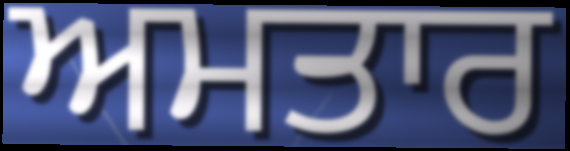
ਅਮਤਾਰ